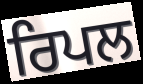
ਰਿਪਲ